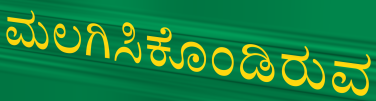
ಮಲಗಿಸಿಕೊಂಡಿರುವ